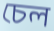
চেল